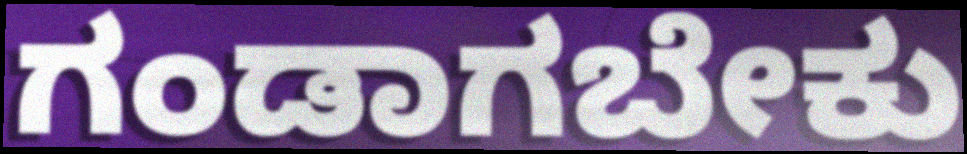
ಗಂಡಾಗಬೇಕು